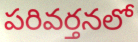
పరివర్తనలో